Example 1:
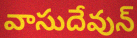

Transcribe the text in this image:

వాసుదేవున్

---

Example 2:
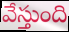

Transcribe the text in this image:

వేస్తుంది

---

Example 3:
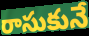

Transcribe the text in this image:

రాసుకునే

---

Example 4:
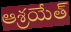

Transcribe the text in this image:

ఆశ్రయేత్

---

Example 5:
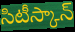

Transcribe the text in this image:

సిటీస్కాన్